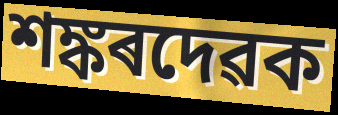
শঙ্কৰদেৱক